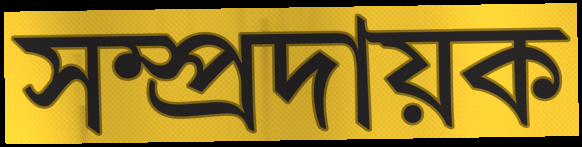
সম্প্ৰদায়ক